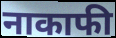
नाकाफी